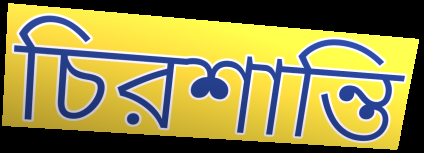
চিরশান্তি